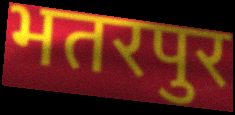
भतरपुर